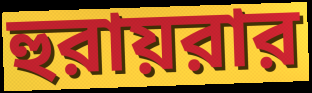
হুরায়রার